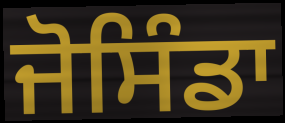
ਜੋਸਿੰਡਾ